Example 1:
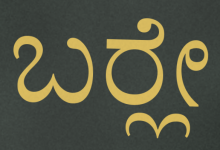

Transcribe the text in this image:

ಬರ್‍ಲೇ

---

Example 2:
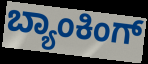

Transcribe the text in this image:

ಬ್ಯಾಂಕಿಂಗ್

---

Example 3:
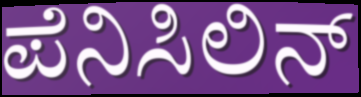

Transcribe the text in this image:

ಪೆನಿಸಿಲಿನ್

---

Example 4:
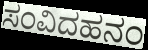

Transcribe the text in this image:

ಸಂವಿದಹನಂ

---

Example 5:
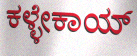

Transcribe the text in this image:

ಕಳ್ಳೇಕಾಯ್